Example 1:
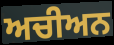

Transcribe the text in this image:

ਅਚੀਅਨ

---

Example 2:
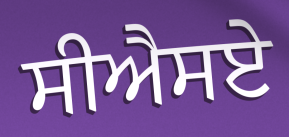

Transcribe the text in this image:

ਸੀਐਸਏ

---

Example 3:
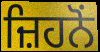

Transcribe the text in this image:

ਜ਼ਿਹਨੋਂ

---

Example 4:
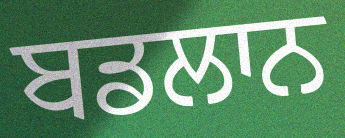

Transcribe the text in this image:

ਬਡਲਾਨ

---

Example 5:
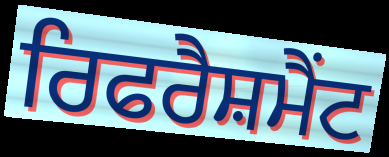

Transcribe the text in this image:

ਰਿਫਰੈਸ਼ਮੈਂਟ